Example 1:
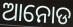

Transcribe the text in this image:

ଆନୋଡ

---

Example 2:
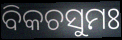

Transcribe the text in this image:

ବିକଚସୁମଃ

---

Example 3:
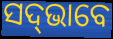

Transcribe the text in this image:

ସଦ୍‌ଭାବେ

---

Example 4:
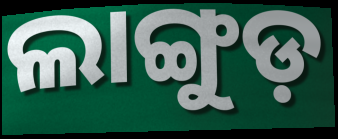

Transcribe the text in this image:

ଲାଙ୍ଗୁଡ଼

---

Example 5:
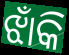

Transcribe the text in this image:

ଝାଁକି